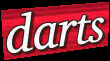
darts